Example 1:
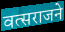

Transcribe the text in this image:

वत्सराजने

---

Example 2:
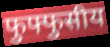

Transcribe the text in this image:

फुफ्फुसीय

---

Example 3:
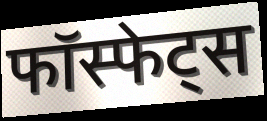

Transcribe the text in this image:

फॉस्फेट्स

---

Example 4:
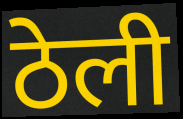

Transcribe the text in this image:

ठेली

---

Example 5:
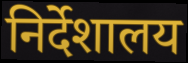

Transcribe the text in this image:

निर्देशालय